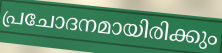
പ്രചോദനമായിരിക്കും